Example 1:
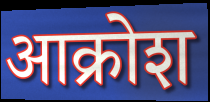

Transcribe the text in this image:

आक्रोश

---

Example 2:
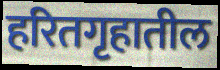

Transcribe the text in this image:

हरितगृहातील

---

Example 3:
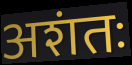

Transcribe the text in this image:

अशंतः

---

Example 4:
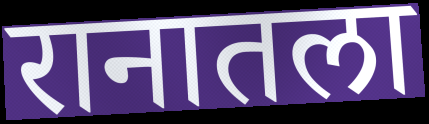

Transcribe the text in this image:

रानातला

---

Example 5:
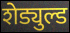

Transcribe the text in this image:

शेड्युल्ड